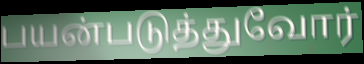
பயன்படுத்துவோர்